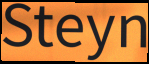
Steyn